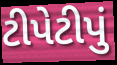
ટીપેટીપું